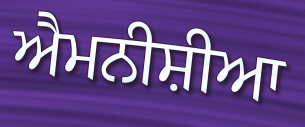
ਐਮਨੀਸ਼ੀਆ